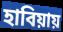
হাবিয়ায়